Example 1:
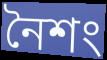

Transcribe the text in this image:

নৈশং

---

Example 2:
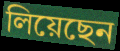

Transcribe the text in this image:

লিয়েছেন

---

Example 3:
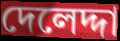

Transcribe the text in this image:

দেলেদ্দা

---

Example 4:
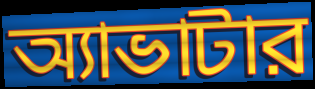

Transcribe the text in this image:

অ্যাভাটার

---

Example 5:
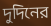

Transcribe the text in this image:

দুদিনের